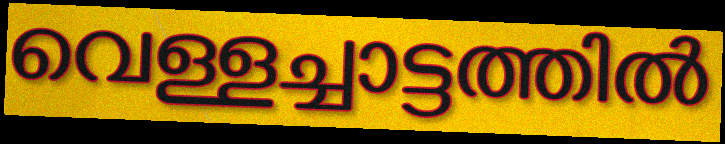
വെള്ളച്ചാട്ടത്തിൽ